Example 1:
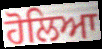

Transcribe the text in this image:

ਹੋਲਿਆ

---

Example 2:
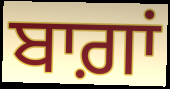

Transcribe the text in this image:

ਬਾਗ਼ਾਂ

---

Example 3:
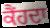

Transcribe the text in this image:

ਕੈਂਹਦਾ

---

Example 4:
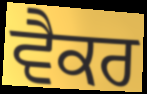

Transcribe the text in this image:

ਵੈਕਰ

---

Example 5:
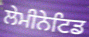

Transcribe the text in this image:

ਲੇਮੀਨੇਟਿਡ